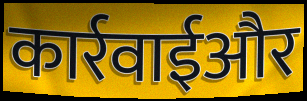
कार्रवाईऔर